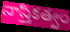
నాస్తికత్వం